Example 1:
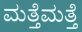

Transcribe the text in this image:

ಮತ್ತೆಮತ್ತೆ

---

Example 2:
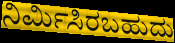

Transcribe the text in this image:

ನಿರ್ಮಿಸಿರಬಹುದು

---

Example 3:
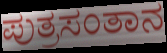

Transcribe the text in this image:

ಪುತ್ರಸಂತಾನ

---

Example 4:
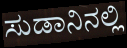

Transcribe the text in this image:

ಸುಡಾನಿನಲ್ಲಿ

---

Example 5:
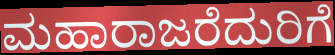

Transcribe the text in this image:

ಮಹಾರಾಜರೆದುರಿಗೆ